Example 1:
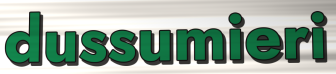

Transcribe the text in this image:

dussumieri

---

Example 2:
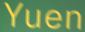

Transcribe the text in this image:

Yuen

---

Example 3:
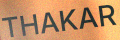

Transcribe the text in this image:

THAKAR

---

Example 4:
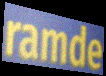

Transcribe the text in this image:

ramde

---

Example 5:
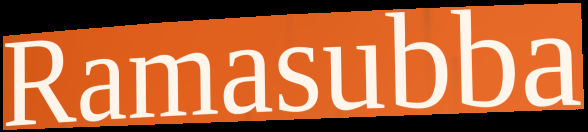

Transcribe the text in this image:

Ramasubba